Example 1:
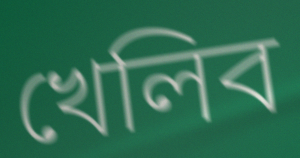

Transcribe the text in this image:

খেলিব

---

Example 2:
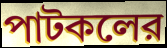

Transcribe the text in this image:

পাটকলের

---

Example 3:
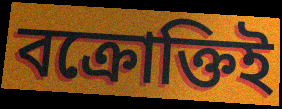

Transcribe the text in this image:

বক্রোক্তিই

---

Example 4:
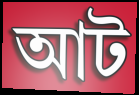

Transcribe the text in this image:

আট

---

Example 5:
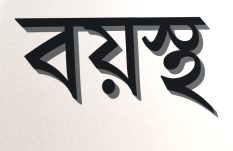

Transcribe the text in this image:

বয়স্থ